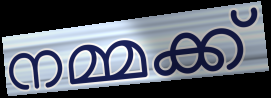
നമ്മക്ക്